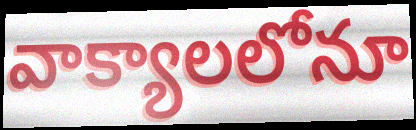
వాక్యాలలోనూ